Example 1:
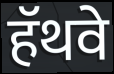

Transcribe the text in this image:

हॅथवे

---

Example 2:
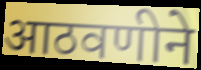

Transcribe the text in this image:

आठवणीने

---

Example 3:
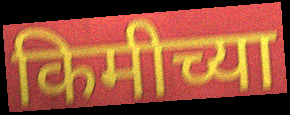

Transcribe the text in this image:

किमीच्या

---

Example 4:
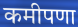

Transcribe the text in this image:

कमीपणा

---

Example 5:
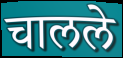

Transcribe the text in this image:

चालले